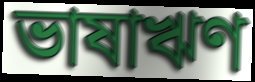
ভাষাঋণ